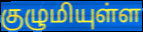
குழுமியுள்ள